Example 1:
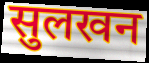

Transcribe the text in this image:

सुलखन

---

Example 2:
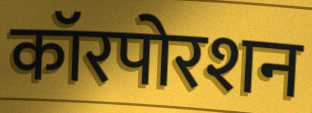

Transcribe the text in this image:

कॉरपोरशन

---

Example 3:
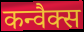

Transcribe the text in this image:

कन्वैक्स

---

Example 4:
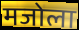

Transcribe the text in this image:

मजोला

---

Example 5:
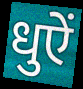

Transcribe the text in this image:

धुऐं